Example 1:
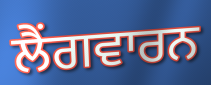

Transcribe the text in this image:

ਲੈਂਗਵਾਰਨ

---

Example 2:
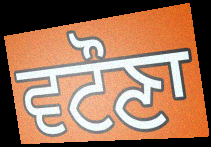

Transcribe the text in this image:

ਵਟੌਣਾ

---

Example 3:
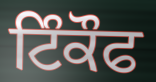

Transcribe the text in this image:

ਟਿੰਕੌਫ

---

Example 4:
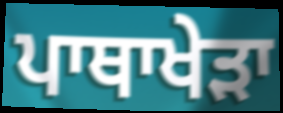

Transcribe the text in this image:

ਪਾਥਾਖੇੜਾ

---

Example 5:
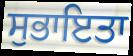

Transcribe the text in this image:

ਸੁਭਾਇਤਾ